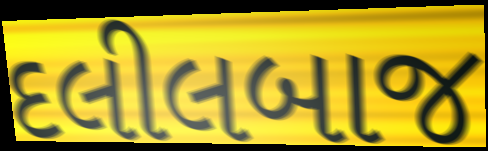
દલીલબાજ